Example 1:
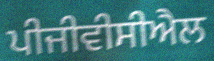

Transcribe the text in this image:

ਪੀਜੀਵੀਸੀਐਲ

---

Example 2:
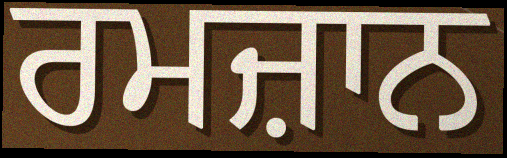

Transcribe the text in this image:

ਰਮਜ਼ਾਨ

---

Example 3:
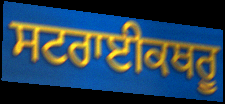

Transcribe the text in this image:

ਸਟਰਾਈਕਥਰੂ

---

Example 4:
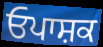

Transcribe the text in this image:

ਓਪਾਸ਼ਕ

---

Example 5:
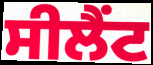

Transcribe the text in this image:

ਸੀਲੈਂਟ